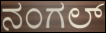
ನಂಗಲ್